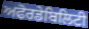
ਅਫੋਰਡੇਬਿਲਿਟੀ